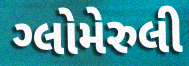
ગ્લોમેરુલી